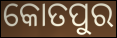
କୋତପୁର